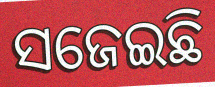
ସଜେଇଛି